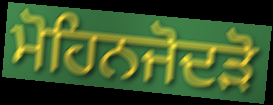
ਮੋਹਿਨਜੋਦੜੋ